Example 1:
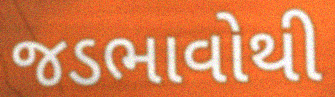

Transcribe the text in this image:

જડભાવોથી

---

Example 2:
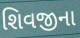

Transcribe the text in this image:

શિવજીના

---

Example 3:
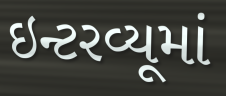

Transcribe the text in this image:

ઇન્ટરવ્યૂમાં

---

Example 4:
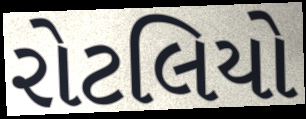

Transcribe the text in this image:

રોટલિયો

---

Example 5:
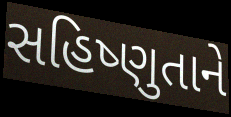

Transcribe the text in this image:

સહિષ્ણુતાને